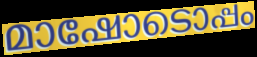
മാഷോടൊപ്പം